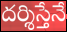
దర్శిస్తేనే